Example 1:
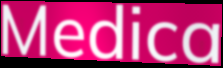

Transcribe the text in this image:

Medica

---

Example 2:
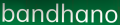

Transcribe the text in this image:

bandhano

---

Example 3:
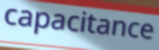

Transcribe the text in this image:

capacitance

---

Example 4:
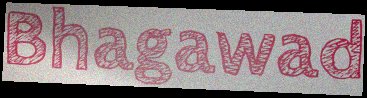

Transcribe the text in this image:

Bhagawad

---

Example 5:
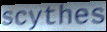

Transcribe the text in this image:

scythes